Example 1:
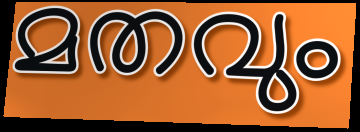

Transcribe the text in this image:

മതവും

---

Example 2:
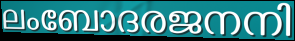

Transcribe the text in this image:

ലംബോദരജനനി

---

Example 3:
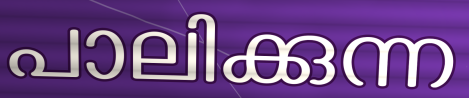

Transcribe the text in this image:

പാലിക്കുന്ന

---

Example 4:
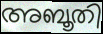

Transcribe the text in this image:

അബൂതി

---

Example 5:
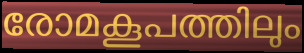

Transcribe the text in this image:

രോമകൂപത്തിലും